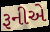
રૂનીએ